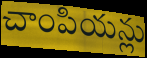
చాంపియన్లు